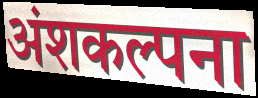
अंशकल्पना